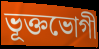
ভূক্তভোগী